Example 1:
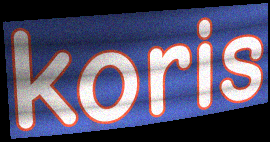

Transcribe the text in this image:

koris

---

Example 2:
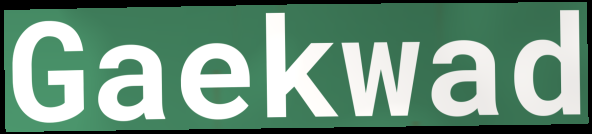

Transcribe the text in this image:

Gaekwad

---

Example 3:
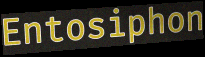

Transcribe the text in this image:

Entosiphon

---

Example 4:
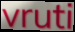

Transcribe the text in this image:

vruti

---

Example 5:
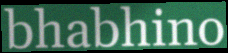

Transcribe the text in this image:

bhabhino